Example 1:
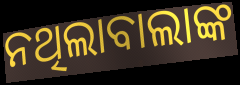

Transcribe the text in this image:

ନଥିଲାବାଲାଙ୍କ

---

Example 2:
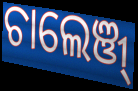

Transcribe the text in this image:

ଚାଲେଞ୍ଜ୍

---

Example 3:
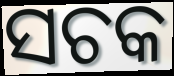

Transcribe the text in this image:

ସଚକ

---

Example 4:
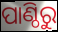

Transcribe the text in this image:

ପାଣ୍ଠିରୁ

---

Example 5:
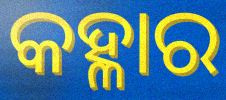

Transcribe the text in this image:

କହ୍ଳାର